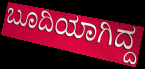
ಬೂದಿಯಾಗಿದ್ದ